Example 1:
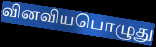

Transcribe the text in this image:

வினவியபொழுது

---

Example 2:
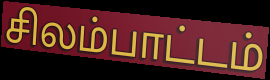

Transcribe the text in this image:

சிலம்பாட்டம்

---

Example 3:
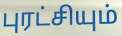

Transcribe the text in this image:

புரட்சியும்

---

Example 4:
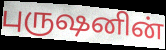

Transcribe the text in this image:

புருஷனின்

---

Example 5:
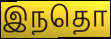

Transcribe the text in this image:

இநதொ